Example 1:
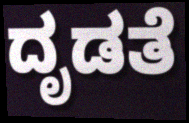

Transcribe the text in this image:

ದೃಡತೆ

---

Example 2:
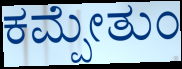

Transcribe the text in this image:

ಕಮ್ಪೇತುಂ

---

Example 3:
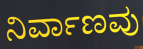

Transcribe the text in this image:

ನಿರ್ವಾಣವು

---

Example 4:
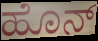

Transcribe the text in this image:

ಹೊನ್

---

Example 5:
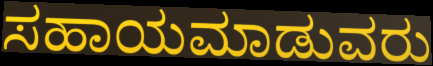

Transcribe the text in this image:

ಸಹಾಯಮಾಡುವರು